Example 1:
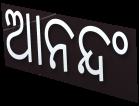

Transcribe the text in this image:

ଆନନ୍ଦଂ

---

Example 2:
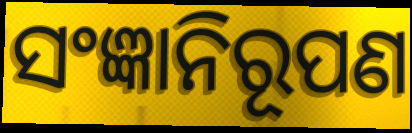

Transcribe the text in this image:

ସଂଜ୍ଞାନିରୂପଣ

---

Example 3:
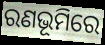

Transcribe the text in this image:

ରଣଭୂମିରେ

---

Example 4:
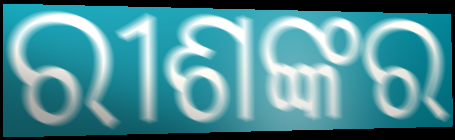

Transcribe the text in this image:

ରୀଶଙ୍କର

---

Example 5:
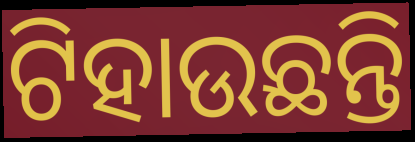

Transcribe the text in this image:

ଟିହାଉଛନ୍ତି